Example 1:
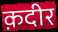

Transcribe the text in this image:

क़दीर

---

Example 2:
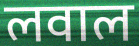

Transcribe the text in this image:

लवाल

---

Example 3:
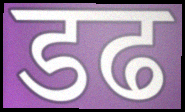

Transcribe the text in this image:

डढ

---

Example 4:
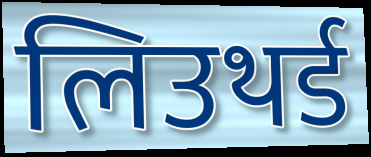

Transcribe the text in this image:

लिउथर्ड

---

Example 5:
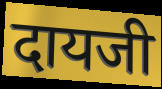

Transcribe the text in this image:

दायजी